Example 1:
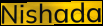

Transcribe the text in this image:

Nishada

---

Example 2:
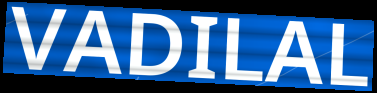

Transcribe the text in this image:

VADILAL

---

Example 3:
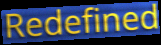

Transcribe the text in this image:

Redefined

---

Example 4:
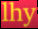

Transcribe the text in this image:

lhy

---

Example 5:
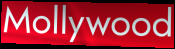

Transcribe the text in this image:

Mollywood